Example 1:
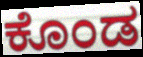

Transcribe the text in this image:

ಕೊಂಡ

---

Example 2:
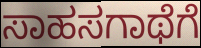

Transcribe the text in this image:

ಸಾಹಸಗಾಥೆಗೆ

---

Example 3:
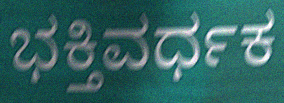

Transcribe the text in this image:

ಭಕ್ತಿವರ್ಧಕ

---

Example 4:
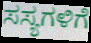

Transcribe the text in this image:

ಸಸ್ಯಗಳಿಗೆ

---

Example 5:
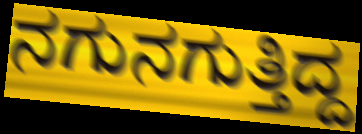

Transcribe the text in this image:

ನಗುನಗುತ್ತಿದ್ದ